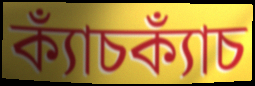
ক্যাঁচক্যাঁচ